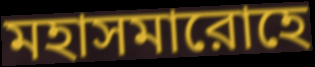
মহাসমারোহে